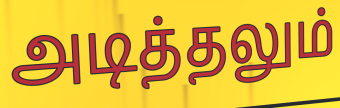
அடித்தலும்